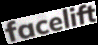
facelift